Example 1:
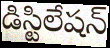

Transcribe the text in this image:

డిస్టిలేషన్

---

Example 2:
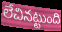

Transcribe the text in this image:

లేచినట్టుంది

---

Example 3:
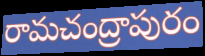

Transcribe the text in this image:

రామచంద్రాపురం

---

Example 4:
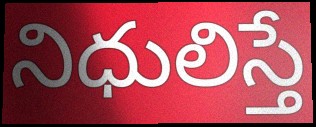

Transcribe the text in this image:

నిధులిస్తే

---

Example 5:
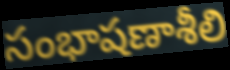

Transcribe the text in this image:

సంభాషణాశీలి